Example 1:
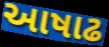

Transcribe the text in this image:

આષાઢ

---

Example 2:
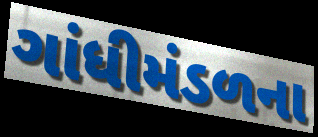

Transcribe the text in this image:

ગાંધીમંડળના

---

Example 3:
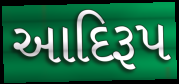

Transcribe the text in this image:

આદિરૂપ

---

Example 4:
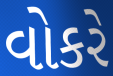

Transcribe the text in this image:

વોકરે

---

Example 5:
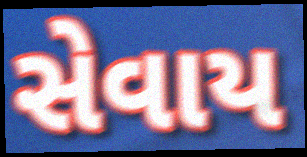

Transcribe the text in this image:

સેવાય